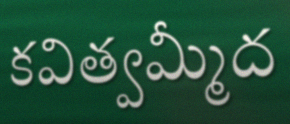
కవిత్వమ్మీద